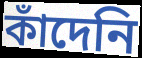
কাঁদেনি